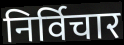
निर्विचार